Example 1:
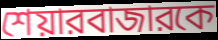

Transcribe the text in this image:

শেয়ারবাজারকে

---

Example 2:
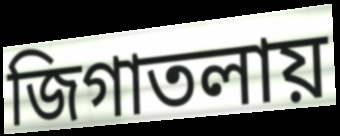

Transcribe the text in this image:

জিগাতলায়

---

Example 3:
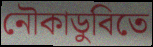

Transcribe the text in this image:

নৌকাডুবিতে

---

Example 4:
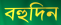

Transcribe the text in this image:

বহুদিন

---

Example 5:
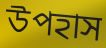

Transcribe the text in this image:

উপহাস